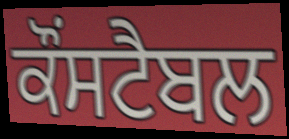
ਕੌਂਸਟੈਬਲ